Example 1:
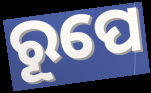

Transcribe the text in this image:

ରୂପେ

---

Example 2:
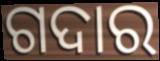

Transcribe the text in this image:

ଗଦାର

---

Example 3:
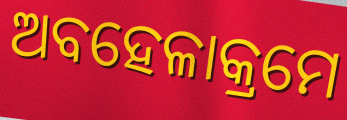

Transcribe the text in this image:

ଅବହେଳାକ୍ରମେ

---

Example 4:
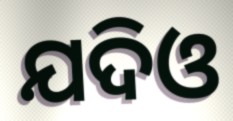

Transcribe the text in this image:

ଯଦିଓ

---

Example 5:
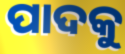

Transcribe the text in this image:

ପାଦକୁ